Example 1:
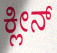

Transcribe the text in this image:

ಕ್ಲೀನ್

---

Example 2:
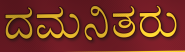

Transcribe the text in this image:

ದಮನಿತರು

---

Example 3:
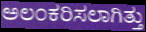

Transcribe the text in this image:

ಅಲಂಕರಿಸಲಾಗಿತ್ತು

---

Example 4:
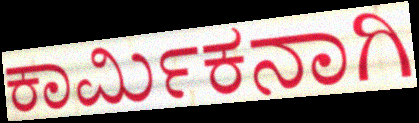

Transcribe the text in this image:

ಕಾರ್ಮಿಕನಾಗಿ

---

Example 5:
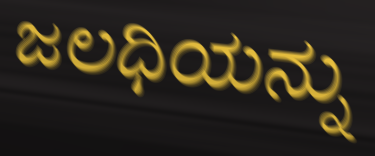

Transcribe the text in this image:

ಜಲಧಿಯನ್ನು